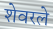
शेवरले